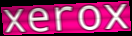
xerox